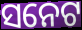
ସନେଟ